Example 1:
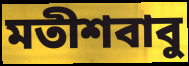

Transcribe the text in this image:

মতীশবাবু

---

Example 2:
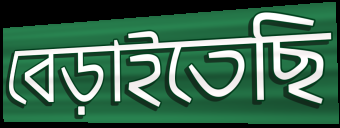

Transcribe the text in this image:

বেড়াইতেছি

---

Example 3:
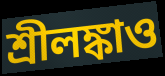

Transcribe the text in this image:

শ্রীলঙ্কাও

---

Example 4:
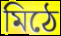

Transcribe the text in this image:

মিঠে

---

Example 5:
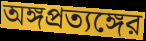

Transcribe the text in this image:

অঙ্গপ্রত্যঙ্গের